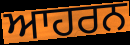
ਆਹਰਨ